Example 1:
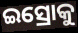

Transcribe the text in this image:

ଇସ୍ରୋକୁ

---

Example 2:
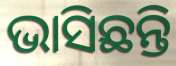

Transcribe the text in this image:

ଭାସିଛନ୍ତି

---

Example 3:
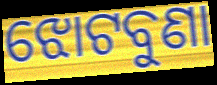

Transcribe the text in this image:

ଝୋଟବୁଣା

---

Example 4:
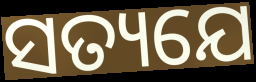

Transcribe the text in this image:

ସତ୍ୟଯେ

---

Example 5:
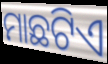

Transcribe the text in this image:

ମାଛଟିଏ